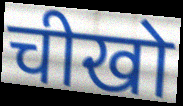
चीखो